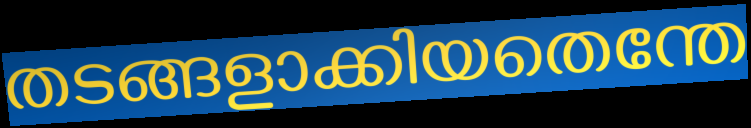
തടങ്ങളാക്കിയതെന്തേ